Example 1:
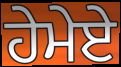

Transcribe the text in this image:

ਹੇਮੇਏ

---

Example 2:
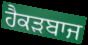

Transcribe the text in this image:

ਹੈਕੜਬਾਜ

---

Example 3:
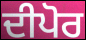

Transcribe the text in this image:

ਦੀਪੋਰ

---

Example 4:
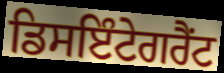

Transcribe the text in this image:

ਡਿਸਇੰਟੇਗਰੈਂਟ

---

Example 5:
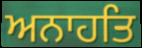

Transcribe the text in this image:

ਅਨਾਹਤਿ